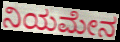
ನಿಯಮೇನ